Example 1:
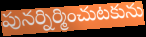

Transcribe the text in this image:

పునర్నిర్మించుటకును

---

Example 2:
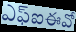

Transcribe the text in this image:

ఎఫ్ఐఈవో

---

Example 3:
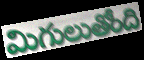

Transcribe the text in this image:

మిగులుతోంది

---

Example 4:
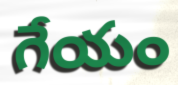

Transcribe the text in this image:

గేయం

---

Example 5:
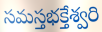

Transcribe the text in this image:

సమస్తభక్తేశ్వరి